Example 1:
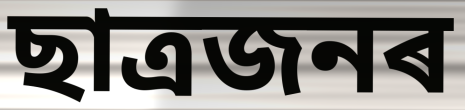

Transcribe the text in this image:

ছাত্ৰজনৰ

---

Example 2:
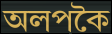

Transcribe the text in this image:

অলপকৈ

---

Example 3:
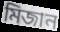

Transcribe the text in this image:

মিজান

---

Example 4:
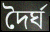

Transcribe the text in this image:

দৈৰ্ঘ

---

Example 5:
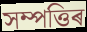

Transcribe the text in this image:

সম্পত্তিৰ